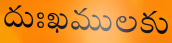
దుఃఖములకు